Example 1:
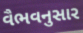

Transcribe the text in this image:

વૈભવનુસાર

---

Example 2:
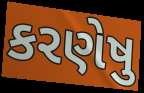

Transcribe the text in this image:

કરણેષુ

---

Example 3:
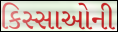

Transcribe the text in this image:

કિસ્સાઓની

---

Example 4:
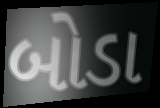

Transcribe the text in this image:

બોડા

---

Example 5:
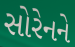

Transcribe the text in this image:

સોરેનને